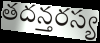
తదన్తరస్య